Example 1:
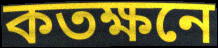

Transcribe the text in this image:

কতক্ষনে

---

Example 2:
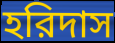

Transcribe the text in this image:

হরিদাস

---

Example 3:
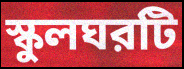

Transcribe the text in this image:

স্কুলঘরটি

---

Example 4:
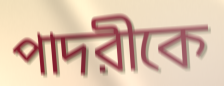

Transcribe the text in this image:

পাদরীকে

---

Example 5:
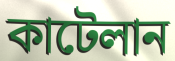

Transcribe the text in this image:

কাটেলান